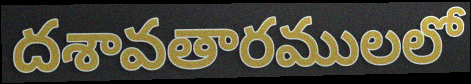
దశావతారములలో